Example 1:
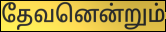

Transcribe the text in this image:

தேவனென்றும்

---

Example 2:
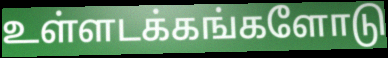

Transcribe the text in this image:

உள்ளடக்கங்களோடு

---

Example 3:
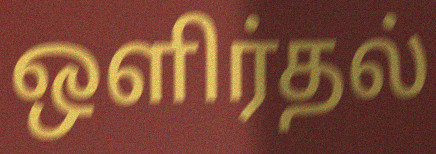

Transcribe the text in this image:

ஒளிர்தல்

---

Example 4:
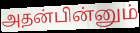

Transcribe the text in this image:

அதன்பின்னும்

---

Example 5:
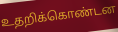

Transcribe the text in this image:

உதறிக்கொண்டன